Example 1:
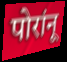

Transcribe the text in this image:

पोरांनू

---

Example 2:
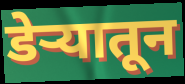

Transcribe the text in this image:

डेऱ्यातून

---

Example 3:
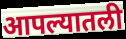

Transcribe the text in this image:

आपल्यातली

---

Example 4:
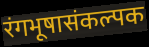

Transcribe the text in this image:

रंगभूषासंकल्पक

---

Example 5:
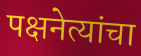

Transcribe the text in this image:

पक्षनेत्यांचा